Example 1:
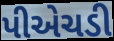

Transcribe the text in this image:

પીએચડી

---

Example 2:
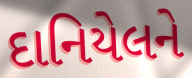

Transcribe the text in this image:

દાનિયેલને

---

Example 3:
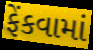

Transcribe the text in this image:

ફેંકવામાં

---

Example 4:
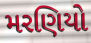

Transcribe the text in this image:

મરણિયો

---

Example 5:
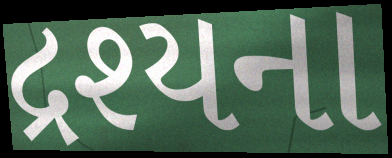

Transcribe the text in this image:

દ્રશ્યના